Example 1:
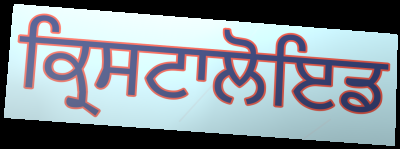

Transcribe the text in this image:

ਕ੍ਰਿਸਟਾਲੋਇਡ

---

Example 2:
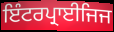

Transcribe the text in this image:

ਇੰਟਰਪ੍ਰਾਈਜਿਜ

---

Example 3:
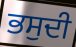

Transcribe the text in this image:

ਭਸੁਦੀ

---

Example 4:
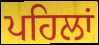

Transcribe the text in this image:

ਪਹਿਲਾਂ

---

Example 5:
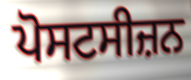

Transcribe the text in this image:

ਪੋਸਟਸੀਜ਼ਨ